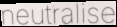
neutralise